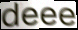
deee